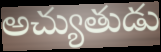
అచ్యుతుడు